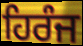
ਹਿਰੰਜ